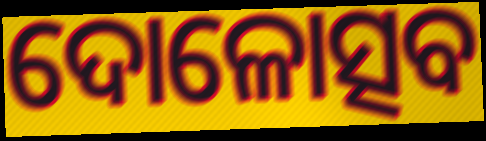
ଦୋଳୋତ୍ସବ